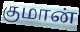
குமான்